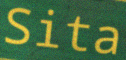
Sita